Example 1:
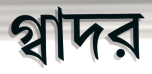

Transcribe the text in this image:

গ্বাদর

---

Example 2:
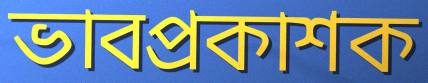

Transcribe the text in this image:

ভাবপ্রকাশক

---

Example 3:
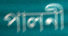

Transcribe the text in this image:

পালনী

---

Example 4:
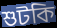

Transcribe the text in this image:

শুটকি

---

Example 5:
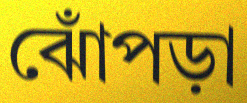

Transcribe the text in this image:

ঝোঁপড়া